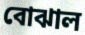
বোঝাল